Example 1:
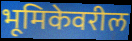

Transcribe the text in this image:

भूमिकेवरील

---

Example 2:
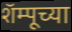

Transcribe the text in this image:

शॅम्पूच्या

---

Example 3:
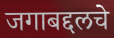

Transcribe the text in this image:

जगाबद्दलचे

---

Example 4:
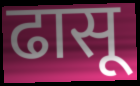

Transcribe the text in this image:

ढासू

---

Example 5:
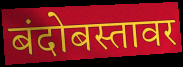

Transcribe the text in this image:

बंदोबस्तावर